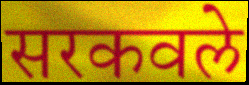
सरकवले